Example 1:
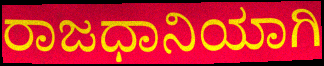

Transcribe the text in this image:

ರಾಜಧಾನಿಯಾಗಿ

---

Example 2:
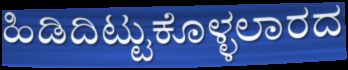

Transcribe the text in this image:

ಹಿಡಿದಿಟ್ಟುಕೊಳ್ಳಲಾರದ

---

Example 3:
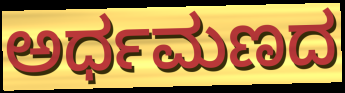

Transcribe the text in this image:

ಅರ್ಧಮಣದ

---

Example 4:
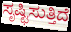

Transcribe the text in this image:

ಸೃಷ್ಟಿಸುತ್ತಿದೆ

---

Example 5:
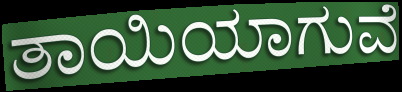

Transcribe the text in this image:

ತಾಯಿಯಾಗುವೆ